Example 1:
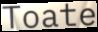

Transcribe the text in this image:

Toate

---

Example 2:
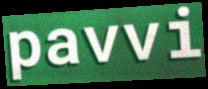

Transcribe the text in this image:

pavvi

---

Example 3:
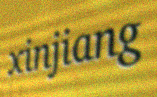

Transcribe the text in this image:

xinjiang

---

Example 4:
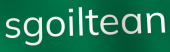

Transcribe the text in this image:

sgoiltean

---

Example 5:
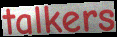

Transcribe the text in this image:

talkers